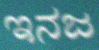
ಇನಜ